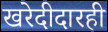
खरेदीदारही